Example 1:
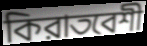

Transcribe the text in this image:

কিরাতবেশী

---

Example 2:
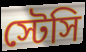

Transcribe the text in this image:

স্টেসি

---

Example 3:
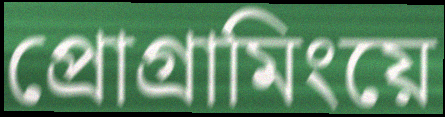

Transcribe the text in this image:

প্রোগ্রামিংয়ে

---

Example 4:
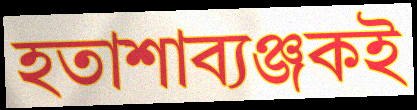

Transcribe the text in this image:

হতাশাব্যঞ্জকই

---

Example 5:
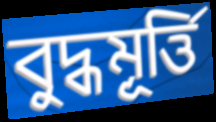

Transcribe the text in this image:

বুদ্ধমূর্ত্তি